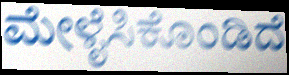
ಮೇಳೈಸಿಕೊಂಡಿದೆ